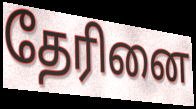
தேரினை